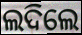
ଲଦିଲେ